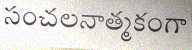
సంచలనాత్మకంగా